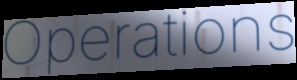
Operations